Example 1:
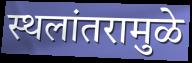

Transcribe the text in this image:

स्थलांतरामुळे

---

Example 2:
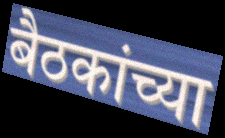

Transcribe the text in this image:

बैठकांच्या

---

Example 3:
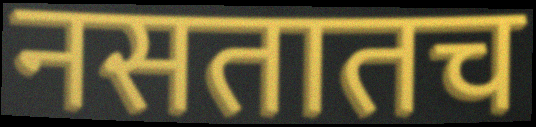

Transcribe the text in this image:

नसतातच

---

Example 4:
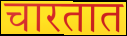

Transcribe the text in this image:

चारतात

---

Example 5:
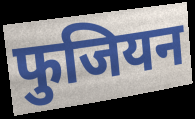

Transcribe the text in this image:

फुजियन